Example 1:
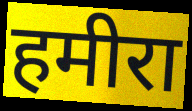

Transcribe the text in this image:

हमीरा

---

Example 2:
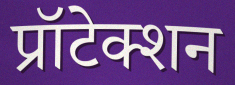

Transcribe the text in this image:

प्रॉटेक्शन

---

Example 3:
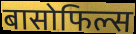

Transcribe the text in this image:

बासोफिल्स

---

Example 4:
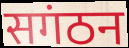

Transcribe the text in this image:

सगंठन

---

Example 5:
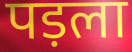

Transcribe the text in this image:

पड़ला